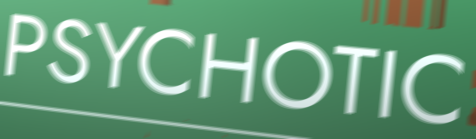
PSYCHOTIC